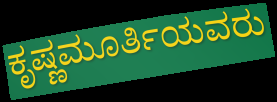
ಕೃಷ್ಣಮೂರ್ತಿಯವರು